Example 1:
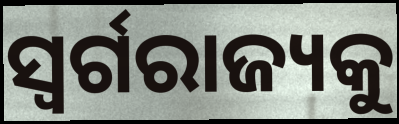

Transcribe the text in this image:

ସ୍ଵର୍ଗରାଜ୍ୟକୁ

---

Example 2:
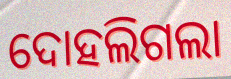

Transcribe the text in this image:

ଦୋହଲିଗଲା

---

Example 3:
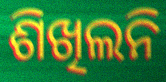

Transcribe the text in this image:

ଶିଖିଲନି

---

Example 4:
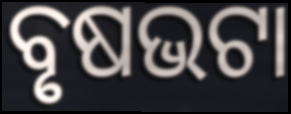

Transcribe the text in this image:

ବୃଷଭଟା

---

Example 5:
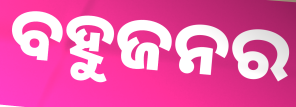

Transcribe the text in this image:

ବହୁଜନର